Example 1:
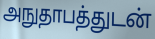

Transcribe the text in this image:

அநுதாபத்துடன்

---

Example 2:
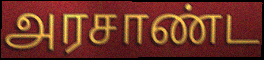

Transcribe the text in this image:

அரசாண்ட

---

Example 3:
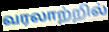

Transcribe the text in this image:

வரலாற்றில்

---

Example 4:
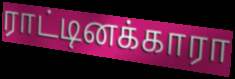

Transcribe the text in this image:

ராட்டினக்காரா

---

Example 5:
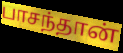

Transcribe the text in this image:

பாசந்தான்